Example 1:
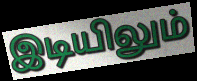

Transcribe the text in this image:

இடியிலும்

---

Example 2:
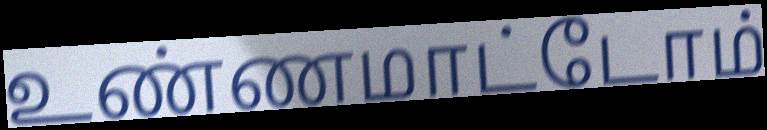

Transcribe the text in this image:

உண்ணமாட்டோம்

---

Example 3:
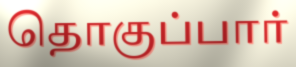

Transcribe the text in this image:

தொகுப்பார்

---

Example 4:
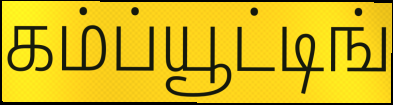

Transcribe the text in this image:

கம்ப்யூட்டிங்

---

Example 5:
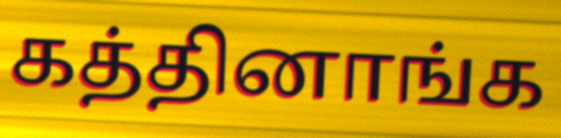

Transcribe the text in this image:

கத்தினாங்க